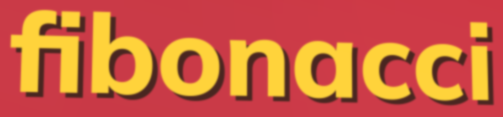
fibonacci